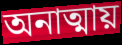
অনাত্মায়